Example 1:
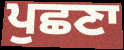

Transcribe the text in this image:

ਪੁਛਣਾ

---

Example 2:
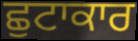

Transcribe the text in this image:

ਛੁਟਾਕਾਰ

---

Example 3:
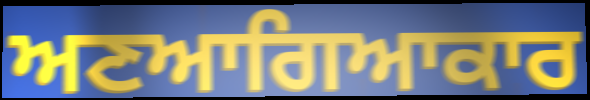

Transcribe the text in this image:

ਅਣਆਗਿਆਕਾਰ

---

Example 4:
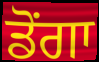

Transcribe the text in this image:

ਡੋਂਗਾ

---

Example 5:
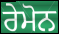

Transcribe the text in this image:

ਰੇਮੋਨ